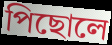
পিছোলে